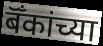
बॅँकांच्या